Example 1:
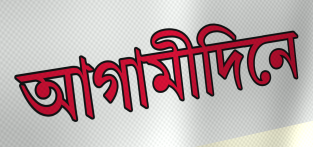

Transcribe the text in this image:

আগামীদিনে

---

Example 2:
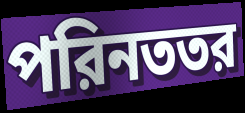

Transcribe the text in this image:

পরিনততর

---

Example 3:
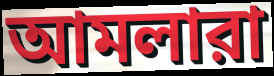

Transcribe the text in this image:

আমলারা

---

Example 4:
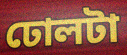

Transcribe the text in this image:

ঢোলটা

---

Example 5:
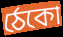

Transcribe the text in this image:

ঠেকো